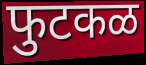
फुटकळ